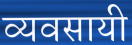
व्यवसायी